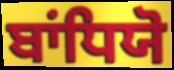
ਬਾਂਧਿਯੋ